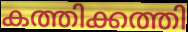
കത്തിക്കത്തി